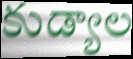
కుడ్యాల